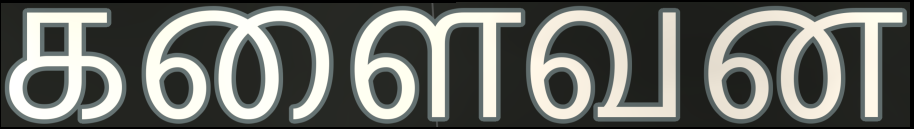
களைவன